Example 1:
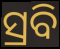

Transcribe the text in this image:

ସ୍ରବି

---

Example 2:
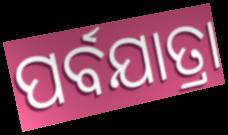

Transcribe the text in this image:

ପର୍ବଯାତ୍ରା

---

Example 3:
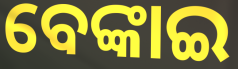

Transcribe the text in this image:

ବେଙ୍କାଇ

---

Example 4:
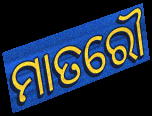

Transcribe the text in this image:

ମାତରୌ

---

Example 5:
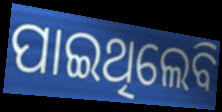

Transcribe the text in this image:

ପାଇଥିଲେବି